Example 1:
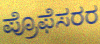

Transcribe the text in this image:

ಪ್ರೊಫೆಸರರ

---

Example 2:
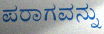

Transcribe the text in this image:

ಪರಾಗವನ್ನು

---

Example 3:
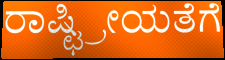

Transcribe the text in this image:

ರಾಷ್ಟ್ರೀಯತೆಗೆ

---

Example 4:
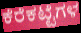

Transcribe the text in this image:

ಕೆರೆಕಟ್ಟೆಗಳ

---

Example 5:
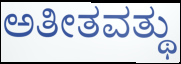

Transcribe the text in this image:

ಅತೀತವತ್ಥು